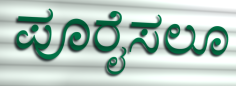
ಪೂರೈಸಲೂ